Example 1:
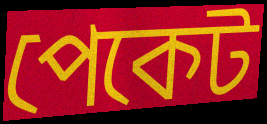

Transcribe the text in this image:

পেকেট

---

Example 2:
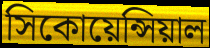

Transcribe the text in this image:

সিকোয়েন্সিয়াল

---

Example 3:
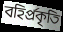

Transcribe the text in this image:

বহির্প্রকৃতি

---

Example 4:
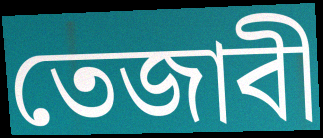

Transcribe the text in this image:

তেজাবী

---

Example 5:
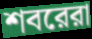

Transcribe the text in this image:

শবরেরা